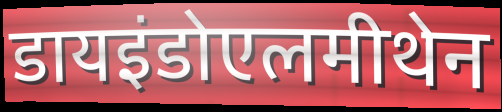
डायइंडोएलमीथेन